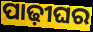
ପାଢ଼ୀଘର